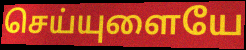
செய்யுளையே